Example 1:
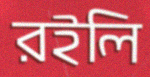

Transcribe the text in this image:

রইলি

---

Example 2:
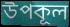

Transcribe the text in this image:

উপকূল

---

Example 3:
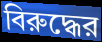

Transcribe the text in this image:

বিরুদ্ধের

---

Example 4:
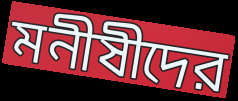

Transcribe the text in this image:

মনীষীদের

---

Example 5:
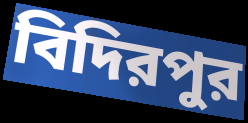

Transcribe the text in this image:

বিদিরপুর